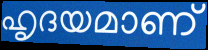
ഹൃദയമാണ്